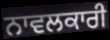
ਨਾਵਲਕਾਰੀ